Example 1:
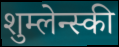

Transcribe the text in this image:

शुम्लेन्स्की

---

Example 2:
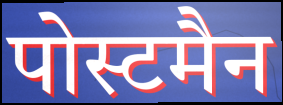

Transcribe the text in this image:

पोस्टमैन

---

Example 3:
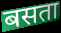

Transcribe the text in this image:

बसता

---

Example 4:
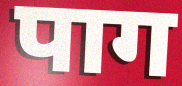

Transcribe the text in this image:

पाग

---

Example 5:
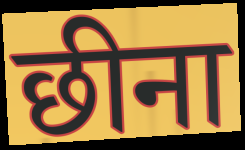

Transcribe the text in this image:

छीना